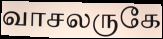
வாசலருகே